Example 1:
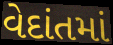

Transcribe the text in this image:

વેદાંતમાં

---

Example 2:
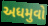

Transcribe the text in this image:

અધમુવો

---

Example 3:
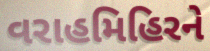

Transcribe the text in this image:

વરાહમિહિરને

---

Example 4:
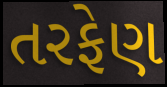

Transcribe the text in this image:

તરફેણ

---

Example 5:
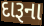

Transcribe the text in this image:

દારૂના